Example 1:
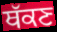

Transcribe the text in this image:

ਥੱਕਣ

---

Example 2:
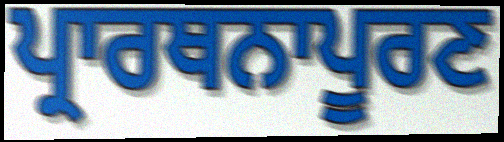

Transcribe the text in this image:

ਪ੍ਰਾਰਥਨਾਪੂਰਣ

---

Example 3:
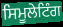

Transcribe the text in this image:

ਸਿਮੂਲੇਟਿੰਗ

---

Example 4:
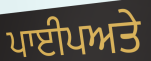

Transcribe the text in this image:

ਪਾਈਪਅਤੇ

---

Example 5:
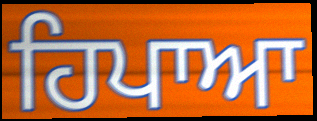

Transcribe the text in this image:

ਹਿਪਾਆ